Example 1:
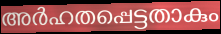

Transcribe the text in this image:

അർഹതപ്പെട്ടതാകും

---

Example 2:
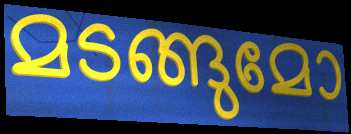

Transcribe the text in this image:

മടങ്ങുമോ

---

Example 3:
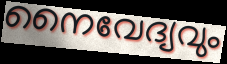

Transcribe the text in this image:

നൈവേദ്യവും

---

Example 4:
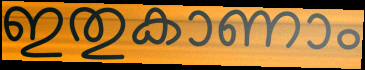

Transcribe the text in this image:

ഇതുകാണാം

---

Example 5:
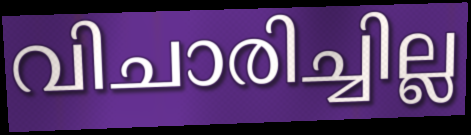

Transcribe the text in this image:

വിചാരിച്ചില്ല